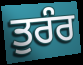
ਤੁਰੰਰ